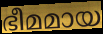
ഭീമമായ